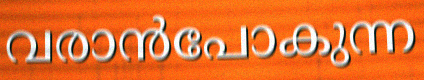
വരാൻപോകുന്ന